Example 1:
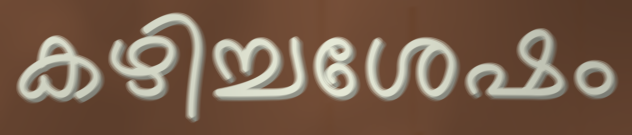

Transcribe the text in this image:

കഴിച്ചശേഷം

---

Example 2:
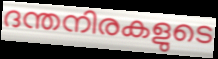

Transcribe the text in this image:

ദന്തനിരകളുടെ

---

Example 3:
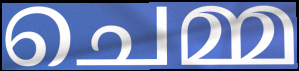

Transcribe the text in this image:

ചെമ്മ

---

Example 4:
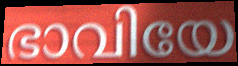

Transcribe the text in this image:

ഭാവിയേ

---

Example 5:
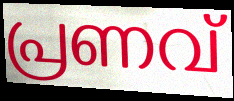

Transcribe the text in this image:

പ്രണവ്